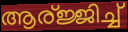
ആര്ജ്ജിച്ച്